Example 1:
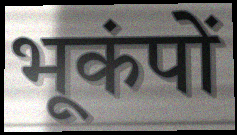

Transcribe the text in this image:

भूकंपों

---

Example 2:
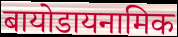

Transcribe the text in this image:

बायोडायनामिक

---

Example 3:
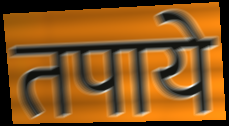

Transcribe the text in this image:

तपाये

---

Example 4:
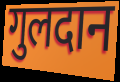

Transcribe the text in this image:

गुलदान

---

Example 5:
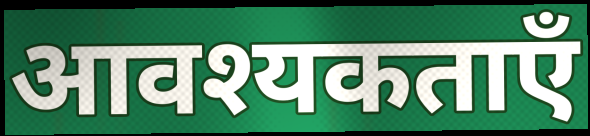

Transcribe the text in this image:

आवश्यकताएँ